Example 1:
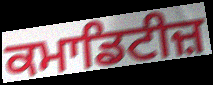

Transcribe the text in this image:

ਕਮਾਡਿਟੀਜ਼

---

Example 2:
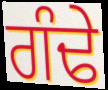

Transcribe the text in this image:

ਗੰਢੇ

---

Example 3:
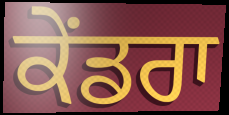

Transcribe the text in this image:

ਕੇਂਡਰਾ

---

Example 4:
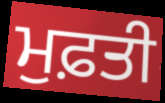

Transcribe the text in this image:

ਮੁਫ਼ਤੀ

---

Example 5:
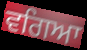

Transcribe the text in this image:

ਵਗਿਆ